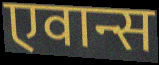
एवान्स